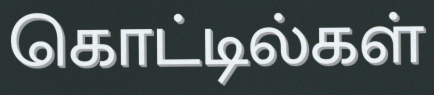
கொட்டில்கள்